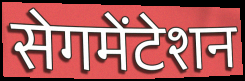
सेगमेंटेशन